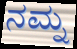
ನಮ್ನ